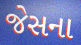
જેસના